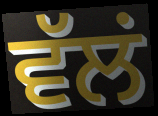
ਵੱਲਂ